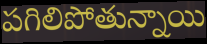
పగిలిపోతున్నాయి